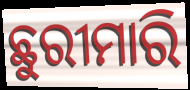
ଛୁରୀମାରି